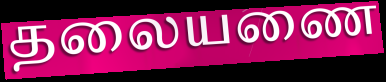
தலையணை